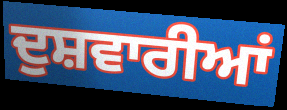
ਦੁਸ਼ਵਾਰੀਆਂ